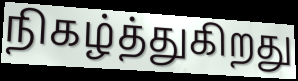
நிகழ்த்துகிறது